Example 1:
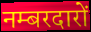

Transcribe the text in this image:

नम्बरदारों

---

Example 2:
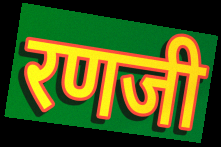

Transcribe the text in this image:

रणजी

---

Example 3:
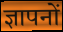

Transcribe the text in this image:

ज्ञापनों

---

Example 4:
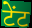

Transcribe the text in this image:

टेंट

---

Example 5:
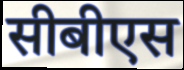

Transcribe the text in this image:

सीबीएस